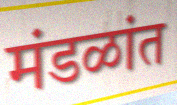
मंडळांत